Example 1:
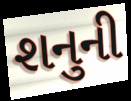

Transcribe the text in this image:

શનુની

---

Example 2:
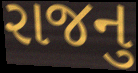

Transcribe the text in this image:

રાજનુ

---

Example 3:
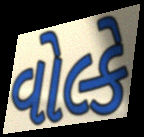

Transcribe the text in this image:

વોલ્કે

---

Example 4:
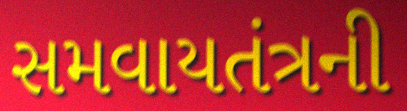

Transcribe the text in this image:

સમવાયતંત્રની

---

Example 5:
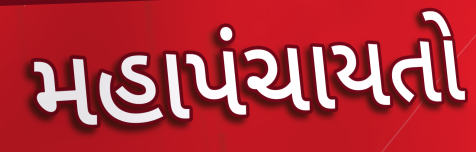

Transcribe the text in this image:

મહાપંચાયતો